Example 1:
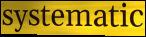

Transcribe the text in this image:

systematic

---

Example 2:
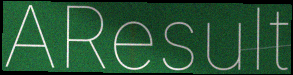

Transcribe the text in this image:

AResult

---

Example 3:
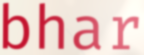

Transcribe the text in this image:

bhar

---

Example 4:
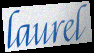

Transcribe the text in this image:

laurel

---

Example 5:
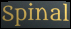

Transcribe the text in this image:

Spinal